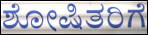
ಶೋಷಿತರಿಗೆ